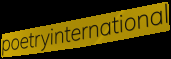
poetryinternational